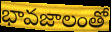
భావజాలంతో